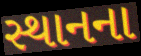
સ્થાનના